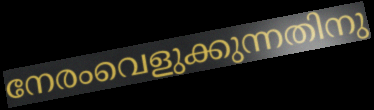
നേരംവെളുക്കുന്നതിനു